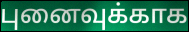
புனைவுக்காக